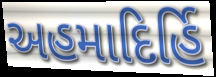
અહમાદિર્હિ